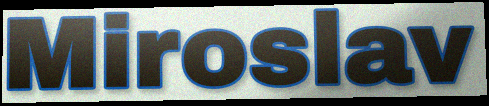
Miroslav